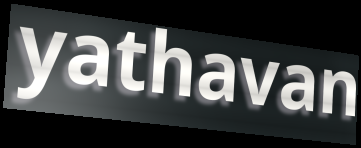
yathavan